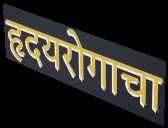
हृदयरोगाचा